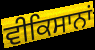
ਵੀਕਿਸਾਨਾਂ